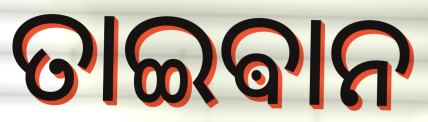
ତାଇଵାନ